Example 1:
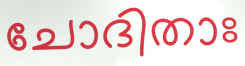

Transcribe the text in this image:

ചോദിതാഃ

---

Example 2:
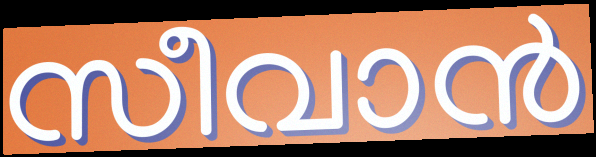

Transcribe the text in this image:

സീവാൻ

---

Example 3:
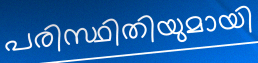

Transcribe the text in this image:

പരിസ്ഥിതിയുമായി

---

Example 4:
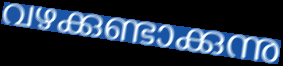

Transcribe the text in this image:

വഴക്കുണ്ടാക്കുന്നു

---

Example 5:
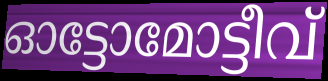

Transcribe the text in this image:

ഓട്ടോമോട്ടീവ്